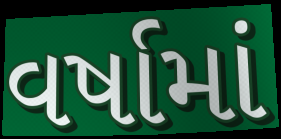
વર્ષામાં